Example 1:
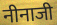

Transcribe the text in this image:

नीनाजी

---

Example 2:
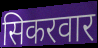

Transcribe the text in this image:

सिकरवार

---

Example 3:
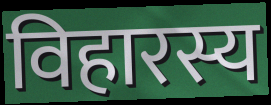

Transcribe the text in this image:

विहारस्य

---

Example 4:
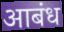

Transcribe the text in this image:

आबंध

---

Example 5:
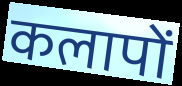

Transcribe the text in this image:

कलापों